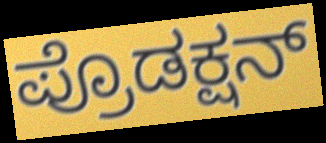
ಪ್ರೊಡಕ್ಷನ್